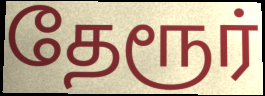
தேரூர்